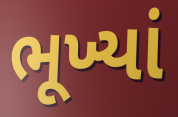
ભૂખ્યાં